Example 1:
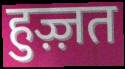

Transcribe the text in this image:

हुज़्ज़त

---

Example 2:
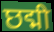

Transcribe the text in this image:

छद्मी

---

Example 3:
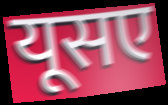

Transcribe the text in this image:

यूसए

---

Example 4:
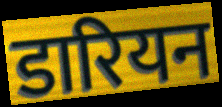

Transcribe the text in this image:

डारियन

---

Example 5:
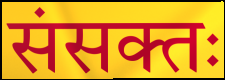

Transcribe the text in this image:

संसक्तः